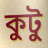
কুটু